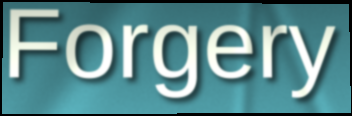
Forgery